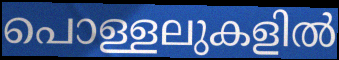
പൊള്ളലുകളിൽ